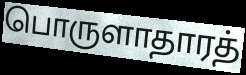
பொருளாதாரத்